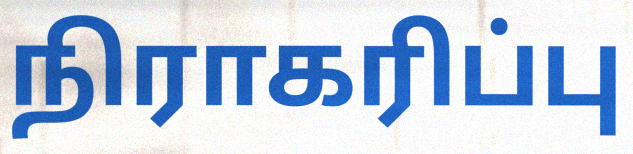
நிராகரிப்பு